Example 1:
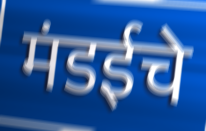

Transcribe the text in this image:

मंडईचे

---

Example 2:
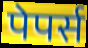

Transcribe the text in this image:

पेपर्स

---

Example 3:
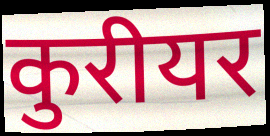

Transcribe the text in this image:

कुरीयर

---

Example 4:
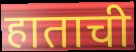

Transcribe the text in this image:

हाताची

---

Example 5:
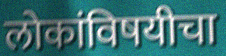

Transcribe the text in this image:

लोकांविषयीचा